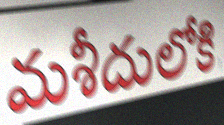
మశీదులోకి